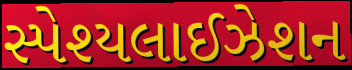
સ્પેશ્યલાઈઝેશન